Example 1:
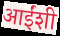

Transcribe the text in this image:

आईंशी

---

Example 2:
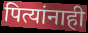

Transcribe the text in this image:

पित्यांनाही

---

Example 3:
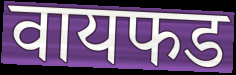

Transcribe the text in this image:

वायफड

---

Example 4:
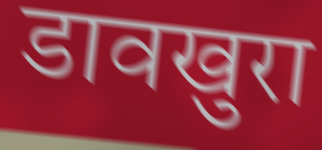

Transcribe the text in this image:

डावखुरा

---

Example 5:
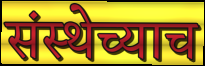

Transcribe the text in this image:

संस्थेच्याच